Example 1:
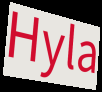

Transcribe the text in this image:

Hyla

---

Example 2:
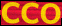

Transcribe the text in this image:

CCO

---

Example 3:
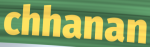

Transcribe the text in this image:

chhanan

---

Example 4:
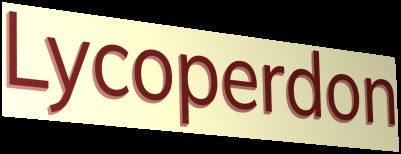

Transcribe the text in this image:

Lycoperdon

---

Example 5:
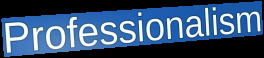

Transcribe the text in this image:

Professionalism